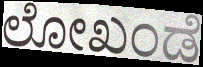
ಲೋಖಂಡೆ